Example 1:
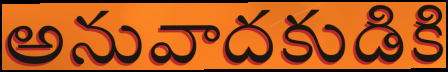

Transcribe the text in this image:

అనువాదకుడికి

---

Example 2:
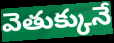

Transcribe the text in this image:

వెతుక్కునే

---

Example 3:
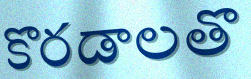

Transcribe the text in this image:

కొరడాలతొ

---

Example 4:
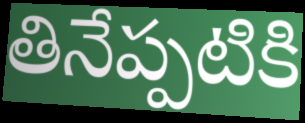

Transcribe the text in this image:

తినేప్పటికి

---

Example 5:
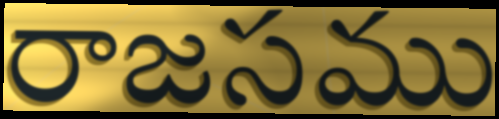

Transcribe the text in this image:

రాజసము